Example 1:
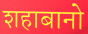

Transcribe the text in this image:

शहाबानो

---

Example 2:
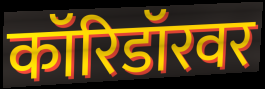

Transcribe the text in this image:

कॉरिडॉरवर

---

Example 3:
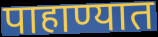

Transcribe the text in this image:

पाहाण्यात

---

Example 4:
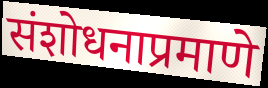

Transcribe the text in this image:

संशोधनाप्रमाणे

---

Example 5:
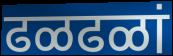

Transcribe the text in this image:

ढळढळां